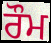
ਰੌਮ